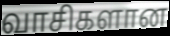
வாசிகளான